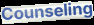
Counseling